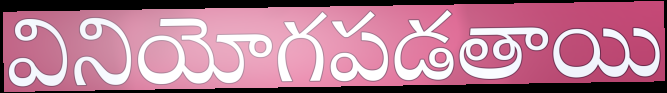
వినియోగపడతాయి